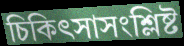
চিকিৎসাসংশ্লিষ্ট